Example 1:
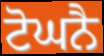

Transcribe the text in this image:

ਟੋਘਨੈ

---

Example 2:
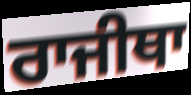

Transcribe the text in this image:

ਰਾਜੀਥਾ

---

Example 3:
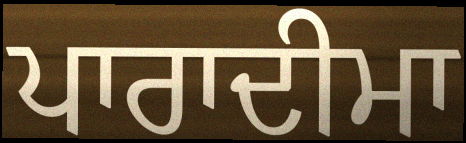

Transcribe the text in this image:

ਪਾਰਾਦੀਮਾ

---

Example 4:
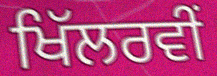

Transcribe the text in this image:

ਖਿੱਲਰਵੀਂ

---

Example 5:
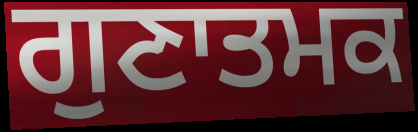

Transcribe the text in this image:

ਗੁਣਾਤਮਕ